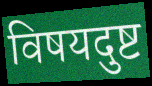
विषयदुष्ट